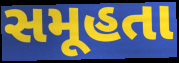
સમૂહતા